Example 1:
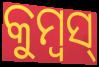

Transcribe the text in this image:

କୁମ୍ବସ୍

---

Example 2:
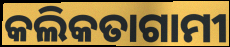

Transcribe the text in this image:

କଲିକତାଗାମୀ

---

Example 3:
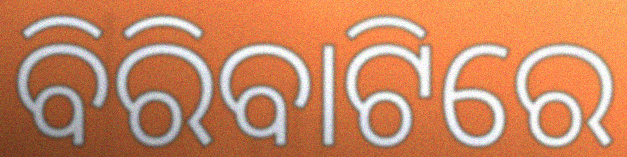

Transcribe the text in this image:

ବିରିବାଟିରେ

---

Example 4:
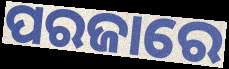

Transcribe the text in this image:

ପରଜାରେ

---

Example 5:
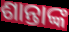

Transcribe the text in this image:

ଶାନ୍ତାଙ୍କ